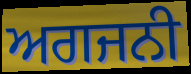
ਅਗਜਨੀ